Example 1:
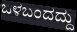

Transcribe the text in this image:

ಒಳಬಂದದ್ದು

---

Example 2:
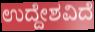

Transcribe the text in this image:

ಉದ್ದೇಶವಿದೆ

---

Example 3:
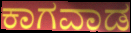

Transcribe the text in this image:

ಕಾಗವಾಡ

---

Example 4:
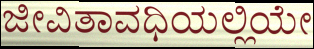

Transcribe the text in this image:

ಜೀವಿತಾವಧಿಯಲ್ಲಿಯೇ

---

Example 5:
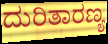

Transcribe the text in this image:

ದುರಿತಾರಣ್ಯ